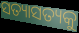
ସତ୍ୟାସତ୍ୟକୁ